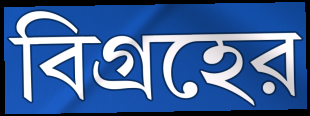
বিগ্রহের